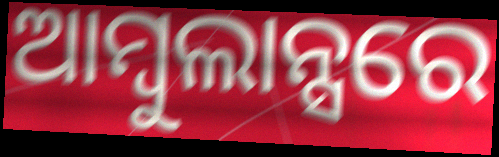
ଆମ୍ବୁଲାନ୍ସରେ